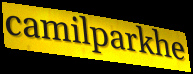
camilparkhe